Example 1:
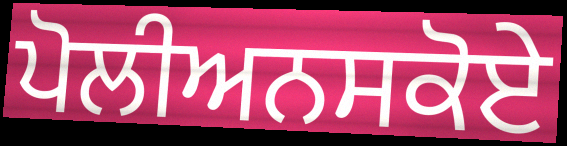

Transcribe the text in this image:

ਪੋਲੀਅਨਸਕੋਏ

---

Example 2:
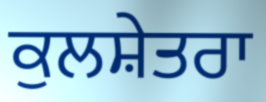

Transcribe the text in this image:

ਕੁਲਸ਼ੇਤਰਾ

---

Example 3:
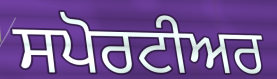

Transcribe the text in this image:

ਸਪੋਰਟੀਅਰ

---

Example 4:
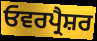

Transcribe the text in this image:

ਓਵਰਪ੍ਰੈਸ਼ਰ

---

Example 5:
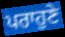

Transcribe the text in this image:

ਪਰਾਹੁਣੇ